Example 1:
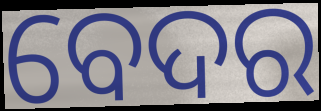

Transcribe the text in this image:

ବେଦର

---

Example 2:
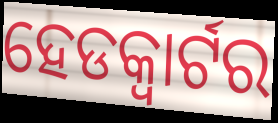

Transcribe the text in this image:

ହେଡକ୍ୱାର୍ଟର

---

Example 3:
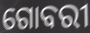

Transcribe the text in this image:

ଗୋବରୀ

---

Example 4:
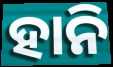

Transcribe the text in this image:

ହାନି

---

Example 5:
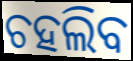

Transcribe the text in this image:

ଚହଲିବ